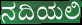
ನದಿಯಲಿ